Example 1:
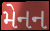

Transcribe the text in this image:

મેનન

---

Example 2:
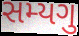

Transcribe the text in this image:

સમ્યગુ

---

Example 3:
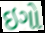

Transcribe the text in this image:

ઇગો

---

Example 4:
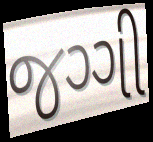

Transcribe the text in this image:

જગ્ગી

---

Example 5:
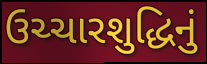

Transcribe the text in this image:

ઉચ્ચારશુદ્ધિનું